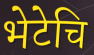
भेटेचि